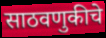
साठवणुकीचे